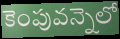
కెంపువన్నెలో